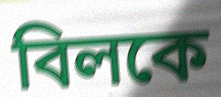
বিলকে